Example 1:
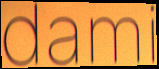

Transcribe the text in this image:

dami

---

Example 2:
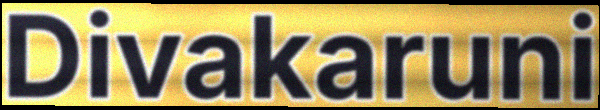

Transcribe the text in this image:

Divakaruni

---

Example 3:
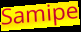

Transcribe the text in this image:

Samipe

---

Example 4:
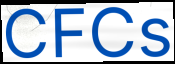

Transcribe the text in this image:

CFCs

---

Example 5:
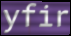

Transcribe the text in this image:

yfir